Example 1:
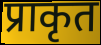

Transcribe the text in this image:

प्राकृत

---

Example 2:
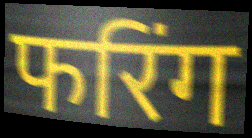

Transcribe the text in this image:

फरिंग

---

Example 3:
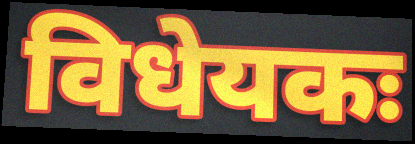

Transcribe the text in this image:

विधेयकः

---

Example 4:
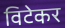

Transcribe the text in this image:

विटेकर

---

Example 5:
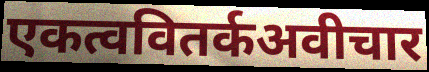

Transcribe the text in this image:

एकत्ववितर्कअवीचार